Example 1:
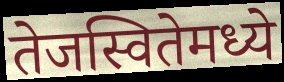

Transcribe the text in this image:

तेजस्वितेमध्ये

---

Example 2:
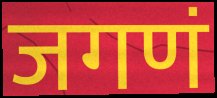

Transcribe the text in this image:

जगणं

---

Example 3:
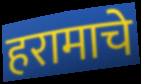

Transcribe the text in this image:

हरामाचे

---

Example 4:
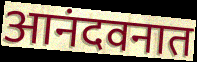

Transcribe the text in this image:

आनंदवनात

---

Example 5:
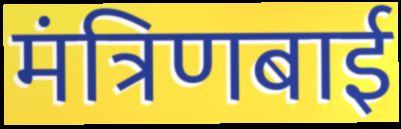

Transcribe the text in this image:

मंत्रिणबाई